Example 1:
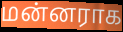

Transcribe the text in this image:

மன்னராக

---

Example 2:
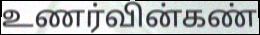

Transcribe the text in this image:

உணர்வின்கண்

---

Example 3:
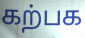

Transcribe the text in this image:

கற்பக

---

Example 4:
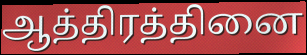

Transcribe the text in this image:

ஆத்திரத்தினை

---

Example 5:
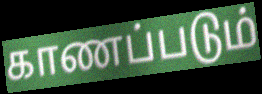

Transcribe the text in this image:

காணப்படும்